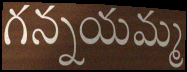
గన్నయమ్మ